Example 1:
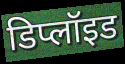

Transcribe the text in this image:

डिप्लॉइड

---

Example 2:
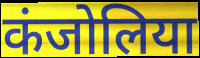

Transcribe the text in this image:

कंजोलिया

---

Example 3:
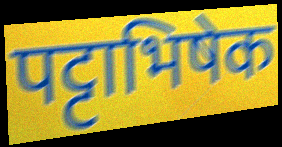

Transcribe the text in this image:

पट्टाभिषेक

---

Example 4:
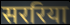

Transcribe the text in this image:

सररिया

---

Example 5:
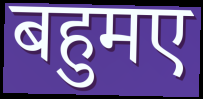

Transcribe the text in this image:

बहुमए